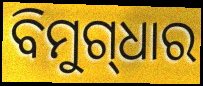
ବିମୁଗ୍‌ଧାର